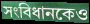
সংবিধানকেও